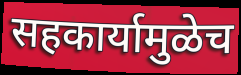
सहकार्यामुळेच